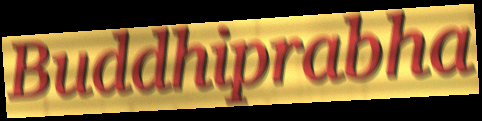
Buddhiprabha